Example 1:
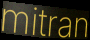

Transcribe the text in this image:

mitran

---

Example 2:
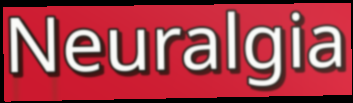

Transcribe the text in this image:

Neuralgia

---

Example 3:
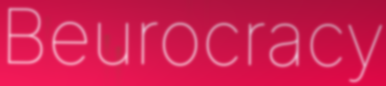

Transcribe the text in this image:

Beurocracy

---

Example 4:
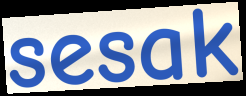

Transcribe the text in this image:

sesak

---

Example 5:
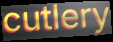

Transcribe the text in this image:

cutlery